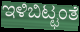
ಇಳಿಬಿಟ್ಟಂತೆ